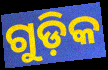
ଗୁଡ଼ିକ